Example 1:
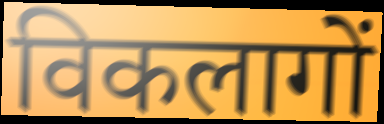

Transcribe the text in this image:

विकलागों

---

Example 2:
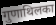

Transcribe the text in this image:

गुणाथिलका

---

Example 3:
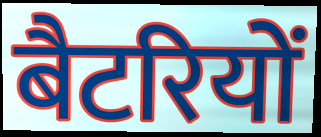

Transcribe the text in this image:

बैटरियों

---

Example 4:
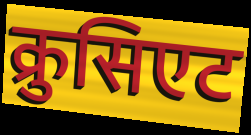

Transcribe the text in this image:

क्रुसिएट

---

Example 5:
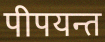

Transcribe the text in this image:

पीपयन्त